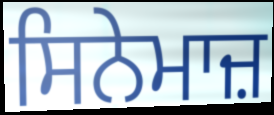
ਸਿਨੇਮਾਜ਼